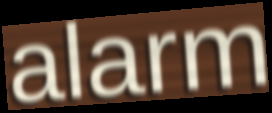
alarm